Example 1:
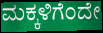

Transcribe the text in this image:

ಮಕ್ಕಳಿಗೆಂದೇ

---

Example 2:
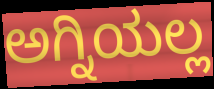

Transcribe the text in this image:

ಅಗ್ನಿಯಲ್ಲ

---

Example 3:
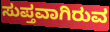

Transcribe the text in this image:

ಸುಪ್ತವಾಗಿರುವ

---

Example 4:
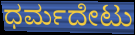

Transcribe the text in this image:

ಧರ್ಮದೇಟು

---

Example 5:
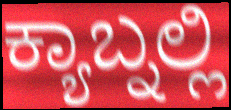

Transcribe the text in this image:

ಕ್ಯಾಬ್ನಲ್ಲಿ